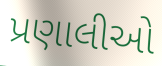
પ્રણાલીઓ